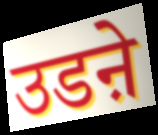
उडऩे